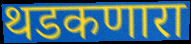
थडकणारा